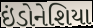
ઇંડોનેશિયા